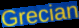
Grecian